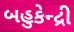
બહુકેન્દ્રી